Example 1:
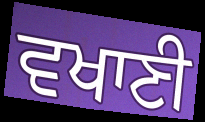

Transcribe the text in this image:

ਵਖਾਣੀ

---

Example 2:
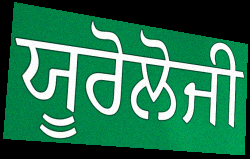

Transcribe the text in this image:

ਯੂਰੋਲੋਜੀ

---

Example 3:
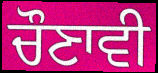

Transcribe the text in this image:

ਚੌਣਾਵੀ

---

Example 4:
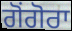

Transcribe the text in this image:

ਗੋਂਗੋਰਾ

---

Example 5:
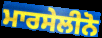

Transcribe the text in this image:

ਮਾਰਸੇਲੀਨੋ